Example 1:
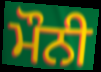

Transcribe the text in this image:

ਮੌਨੀ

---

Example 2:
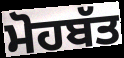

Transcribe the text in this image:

ਮੋਹਬੱਤ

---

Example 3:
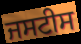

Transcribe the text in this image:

ਜਸਟੀਸ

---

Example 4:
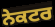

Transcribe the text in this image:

ਨੇਕਟਰ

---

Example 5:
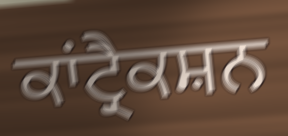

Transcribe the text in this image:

ਕਾਂਟ੍ਰੈਕਸ਼ਨ